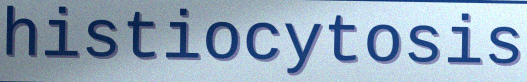
histiocytosis